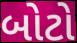
બોટો